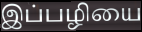
இப்பழியை